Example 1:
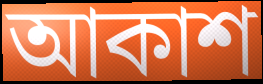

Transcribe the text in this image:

আকাশ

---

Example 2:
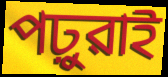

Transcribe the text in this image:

পঢ়ুৱাই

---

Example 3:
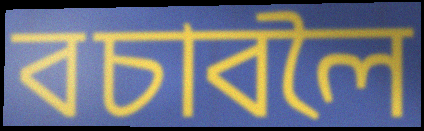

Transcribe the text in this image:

বচাবলৈ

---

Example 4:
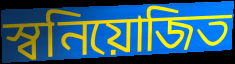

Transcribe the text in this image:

স্বনিয়োজিত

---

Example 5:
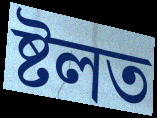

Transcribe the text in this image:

ষ্টলত